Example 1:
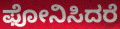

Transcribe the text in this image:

ಫೋನಿಸಿದರೆ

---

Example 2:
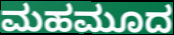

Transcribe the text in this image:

ಮಹಮೂದ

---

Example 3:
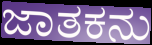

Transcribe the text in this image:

ಜಾತಕನು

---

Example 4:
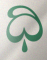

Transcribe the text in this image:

ಧಿ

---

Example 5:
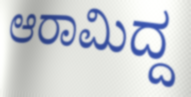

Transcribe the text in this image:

ಆರಾಮಿದ್ದ